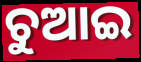
ଚୁଆଇ